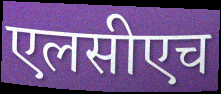
एलसीएच